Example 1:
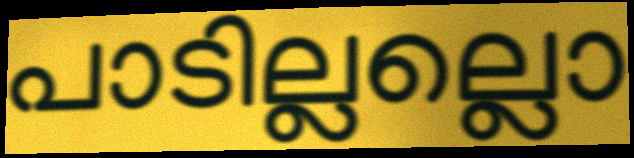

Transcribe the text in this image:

പാടില്ലല്ലൊ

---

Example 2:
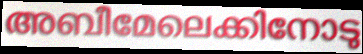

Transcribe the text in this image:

അബീമേലെക്കിനോടു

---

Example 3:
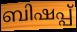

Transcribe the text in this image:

ബിഷപ്പ്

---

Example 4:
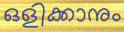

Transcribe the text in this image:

ഒളിക്കാനും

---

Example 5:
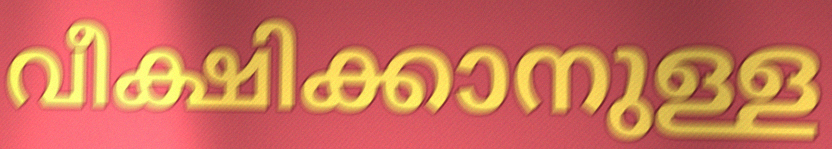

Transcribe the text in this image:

വീക്ഷിക്കാനുള്ള